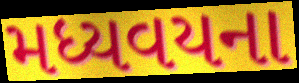
મધ્યવયના